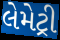
લેમેટ્રી